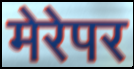
मेरेपर